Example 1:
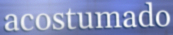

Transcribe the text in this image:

acostumado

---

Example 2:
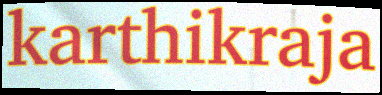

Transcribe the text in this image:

karthikraja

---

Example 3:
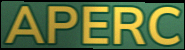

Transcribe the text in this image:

APERC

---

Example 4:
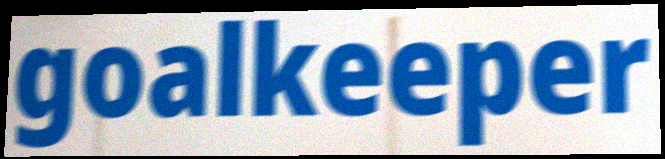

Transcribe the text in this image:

goalkeeper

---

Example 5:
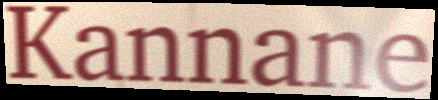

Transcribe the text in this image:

Kannane